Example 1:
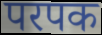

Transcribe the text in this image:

परपक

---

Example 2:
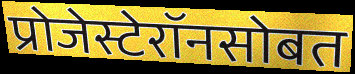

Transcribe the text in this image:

प्रोजेस्टेरॉनसोबत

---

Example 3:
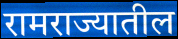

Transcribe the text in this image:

रामराज्यातील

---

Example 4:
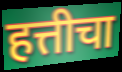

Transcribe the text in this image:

हत्तीचा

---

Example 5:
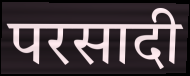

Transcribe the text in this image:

परसादी